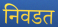
निवडत